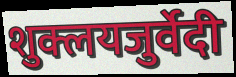
शुक्लयजुर्वेदी